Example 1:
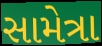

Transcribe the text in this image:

સામેત્રા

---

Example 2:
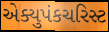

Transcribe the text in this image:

એક્યુપંકચરિસ્ટ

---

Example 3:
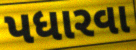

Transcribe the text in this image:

પધારવા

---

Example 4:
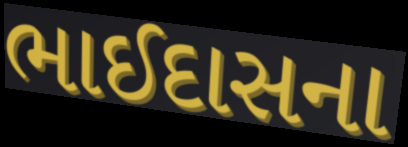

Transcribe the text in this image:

ભાઈદાસના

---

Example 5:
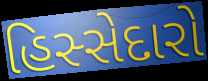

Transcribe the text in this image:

હિસ્સેદારો